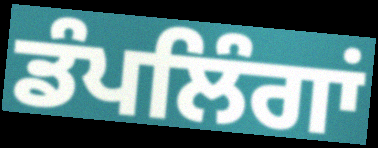
ਡੰਪਲਿੰਗਾਂ